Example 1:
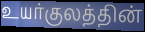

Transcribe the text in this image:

உயர்குலத்தின்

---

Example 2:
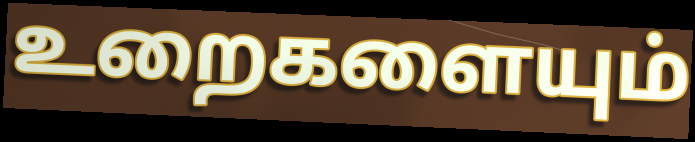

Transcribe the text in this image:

உறைகளையும்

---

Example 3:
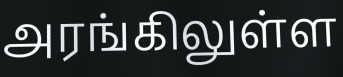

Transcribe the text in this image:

அரங்கிலுள்ள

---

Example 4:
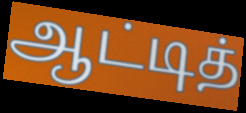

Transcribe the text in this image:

ஆட்டித்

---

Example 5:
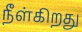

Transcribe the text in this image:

நீள்கிறது